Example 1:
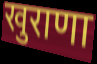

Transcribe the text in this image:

खुराणा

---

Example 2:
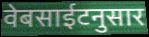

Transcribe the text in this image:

वेबसाईटनुसार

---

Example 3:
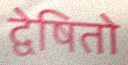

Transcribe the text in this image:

द्वेषितो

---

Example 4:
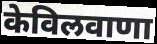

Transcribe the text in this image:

केविलवाणा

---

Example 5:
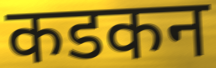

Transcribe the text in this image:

कडकन